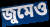
জুমেও